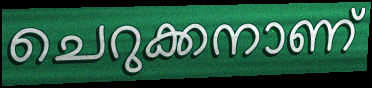
ചെറുക്കനാണ്